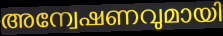
അന്വേഷണവുമായി